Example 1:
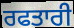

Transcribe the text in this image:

ਰਫਤਾਰੀ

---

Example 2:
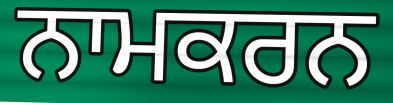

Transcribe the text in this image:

ਨਾਮਕਰਨ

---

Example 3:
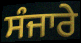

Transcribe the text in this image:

ਸੰਜਾਰੇ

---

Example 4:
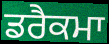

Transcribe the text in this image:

ਡਰੈਕਮਾ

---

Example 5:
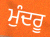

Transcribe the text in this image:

ਮੁੰਦਰੂ